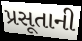
પ્રસૂતાની